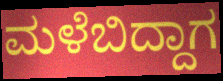
ಮಳೆಬಿದ್ದಾಗ